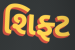
શિફ્ટ